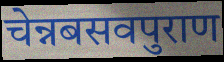
चेन्नबसवपुराण